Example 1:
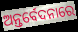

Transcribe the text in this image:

ଅନ୍ତର୍ବେଦନାରେ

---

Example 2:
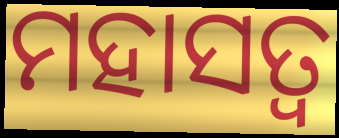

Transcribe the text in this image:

ମହାସତ୍ୱ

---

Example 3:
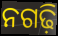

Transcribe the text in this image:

ନଗଢ଼ି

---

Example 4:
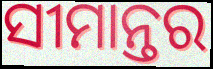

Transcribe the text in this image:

ସୀମାନ୍ତର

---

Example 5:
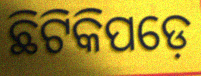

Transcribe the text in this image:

ଛିଟିକିପଡ଼େ